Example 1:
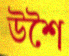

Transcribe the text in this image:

উশৈ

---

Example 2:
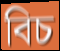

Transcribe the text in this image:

বিচ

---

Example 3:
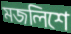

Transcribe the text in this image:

মজলিশে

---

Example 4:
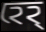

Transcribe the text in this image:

হেহ্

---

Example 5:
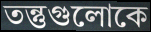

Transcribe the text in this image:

তন্তুগুলোকে